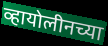
व्हायोलीनच्या